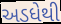
અડધેથી